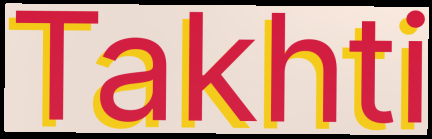
Takhti